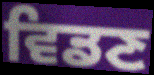
ਵਿਡਣ